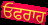
ਓਫਰਾਹ